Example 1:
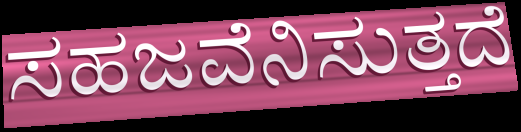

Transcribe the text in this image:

ಸಹಜವೆನಿಸುತ್ತದೆ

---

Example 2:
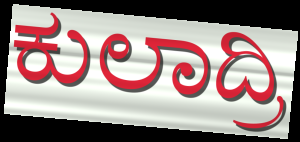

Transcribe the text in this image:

ಕುಲಾದ್ರಿ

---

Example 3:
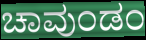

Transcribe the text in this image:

ಚಾವುಂಡಂ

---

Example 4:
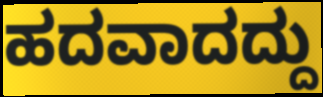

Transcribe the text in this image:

ಹದವಾದದ್ದು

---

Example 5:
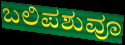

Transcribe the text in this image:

ಬಲಿಪಶುವೂ